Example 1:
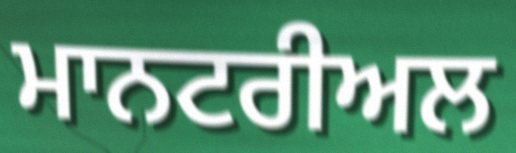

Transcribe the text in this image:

ਮਾਨਟਰੀਅਲ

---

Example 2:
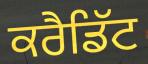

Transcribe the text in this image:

ਕਰੈਡਿੱਟ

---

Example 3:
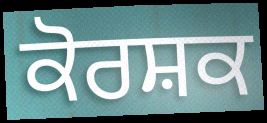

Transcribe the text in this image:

ਕੋਰਸ਼ਕ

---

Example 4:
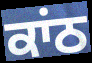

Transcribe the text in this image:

ਕਾਂਠ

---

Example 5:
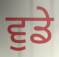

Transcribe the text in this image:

ਵੁਡੇ